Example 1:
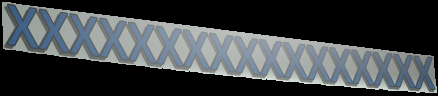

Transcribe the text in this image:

xxxxxxxxxxxxxxxxx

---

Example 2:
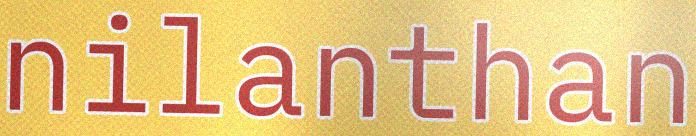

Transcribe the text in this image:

nilanthan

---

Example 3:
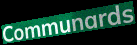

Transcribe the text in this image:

Communards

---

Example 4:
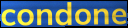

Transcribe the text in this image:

condone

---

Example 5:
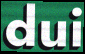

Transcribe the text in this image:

dui